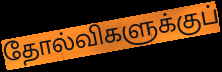
தோல்விகளுக்குப்